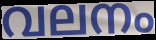
വലനം